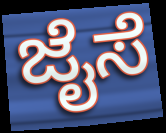
ಜೈಸೆ